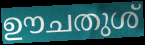
ഊചതുശ്